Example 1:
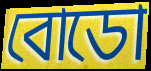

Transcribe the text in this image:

বোডো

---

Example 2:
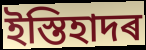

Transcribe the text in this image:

ইস্তিহাদৰ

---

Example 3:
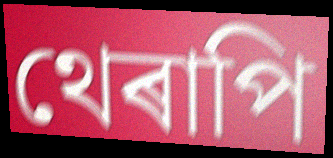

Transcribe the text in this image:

থেৰাপি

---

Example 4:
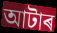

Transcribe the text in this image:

আটাৰ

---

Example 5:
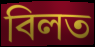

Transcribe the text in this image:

বিলত